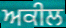
ਅਕੀਲ